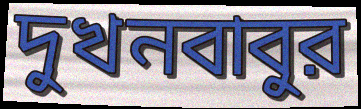
দুখনবাবুর